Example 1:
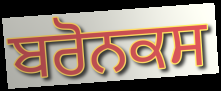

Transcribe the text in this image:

ਬਰੋਨਕਸ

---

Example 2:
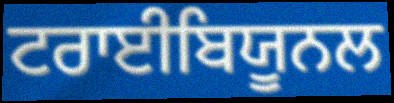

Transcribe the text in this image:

ਟਰਾਈਬਿਯੂਨਲ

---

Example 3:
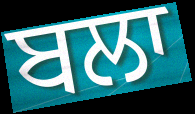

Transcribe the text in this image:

ਬਲਾ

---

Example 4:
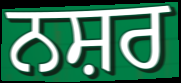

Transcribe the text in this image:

ਨਸ਼ਰ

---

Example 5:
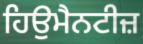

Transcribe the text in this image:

ਹਿਉਮੈਨਟੀਜ਼